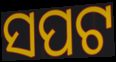
ସପଟ